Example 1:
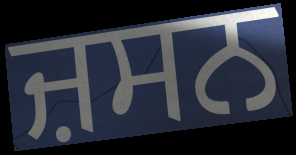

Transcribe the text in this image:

ਜ਼ਸਨ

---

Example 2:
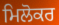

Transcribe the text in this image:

ਮਿਲੋਕਰ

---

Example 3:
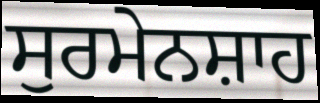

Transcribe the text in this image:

ਸੁਰਮੇਨਸ਼ਾਹ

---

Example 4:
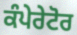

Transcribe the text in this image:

ਕੰਪੇਰੇਟੋਰ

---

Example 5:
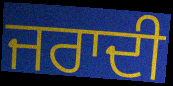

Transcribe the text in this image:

ਜਰਾਦੀ